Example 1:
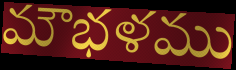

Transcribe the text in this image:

మౌభళము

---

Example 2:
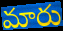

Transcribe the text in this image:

మారు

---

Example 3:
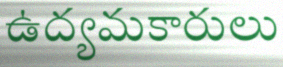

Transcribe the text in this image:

ఉద్యమకారులు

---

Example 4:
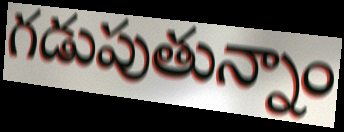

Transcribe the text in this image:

గడుపుతున్నాం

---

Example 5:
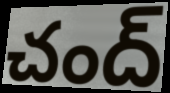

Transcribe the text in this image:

చంద్